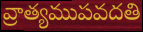
వ్రాత్యముపవదతి